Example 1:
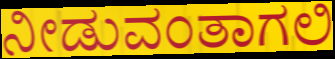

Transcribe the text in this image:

ನೀಡುವಂತಾಗಲಿ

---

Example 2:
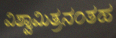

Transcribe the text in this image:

ವಿಶ್ವಾಮಿತ್ರನಂತಹ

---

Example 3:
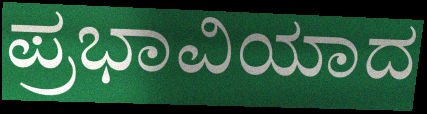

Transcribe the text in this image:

ಪ್ರಭಾವಿಯಾದ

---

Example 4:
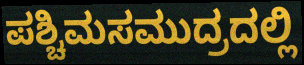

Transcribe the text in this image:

ಪಶ್ಚಿಮಸಮುದ್ರದಲ್ಲಿ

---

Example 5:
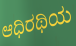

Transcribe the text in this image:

ಆಧಿರಥಿಯ